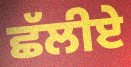
ਛੱਲੀਏ